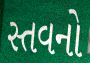
સ્તવનો